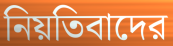
নিয়তিবাদের